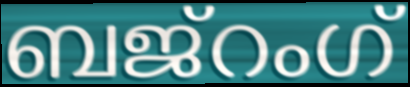
ബജ്റംഗ്